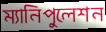
ম্যানিপুলেশন